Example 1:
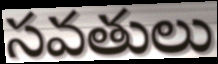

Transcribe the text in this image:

సవతులు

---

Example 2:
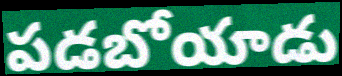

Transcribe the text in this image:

పడబోయాడు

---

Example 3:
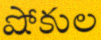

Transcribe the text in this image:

షోకుల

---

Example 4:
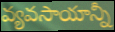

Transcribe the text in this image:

వ్యవసాయాన్నీ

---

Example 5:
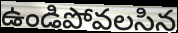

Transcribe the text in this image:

ఉండిపోవలసిన